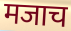
मजाच